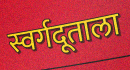
स्वर्गदूताला